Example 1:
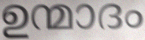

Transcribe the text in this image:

ഉന്മാദം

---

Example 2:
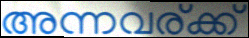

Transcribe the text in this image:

അന്നവര്ക്ക്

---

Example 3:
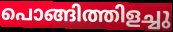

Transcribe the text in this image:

പൊങ്ങിത്തിളച്ചു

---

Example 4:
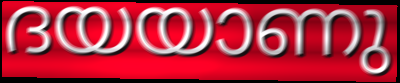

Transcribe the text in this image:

ദയയാണു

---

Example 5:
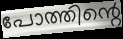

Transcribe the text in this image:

പോത്തിന്റെ